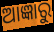
ଆଜ୍ଞାରୁ